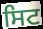
ਸਿਟ